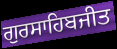
ਗੁਰਸਾਹਿਬਜੀਤ